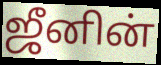
ஜீனின்